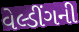
વેલ્ડીંગની